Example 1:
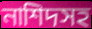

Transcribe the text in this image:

নাশিদসহ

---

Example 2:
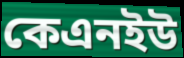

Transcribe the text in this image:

কেএনইউ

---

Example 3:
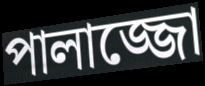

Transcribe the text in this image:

পালাজ্জো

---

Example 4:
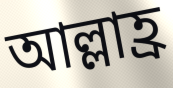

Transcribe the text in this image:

আল্লাহ্র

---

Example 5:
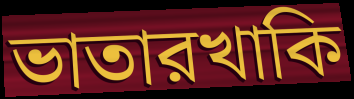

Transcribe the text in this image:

ভাতারখাকি